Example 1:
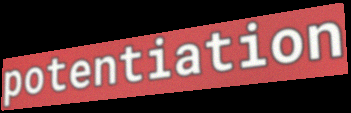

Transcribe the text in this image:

potentiation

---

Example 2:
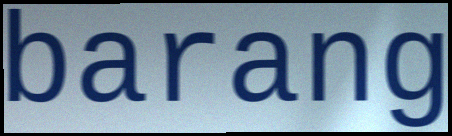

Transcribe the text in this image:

barang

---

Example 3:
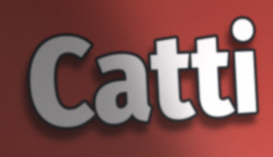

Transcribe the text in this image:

Catti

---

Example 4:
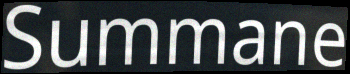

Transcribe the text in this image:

Summane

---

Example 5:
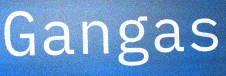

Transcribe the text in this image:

Gangas